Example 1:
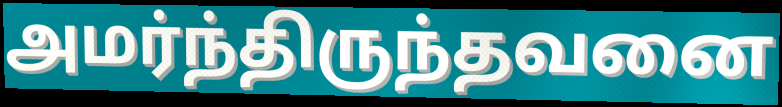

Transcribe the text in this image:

அமர்ந்திருந்தவனை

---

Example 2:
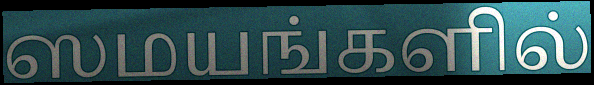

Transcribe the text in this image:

ஸமயங்களில்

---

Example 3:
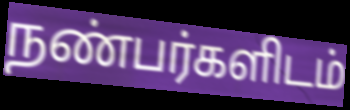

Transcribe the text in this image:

நண்பர்களிடம்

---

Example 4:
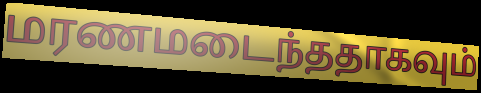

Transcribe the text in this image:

மரணமடைந்ததாகவும்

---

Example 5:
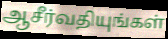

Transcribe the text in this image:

ஆசீர்வதியுங்கள்